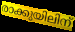
രാക്കുയിലിന്